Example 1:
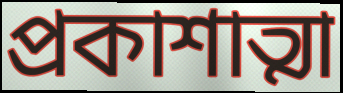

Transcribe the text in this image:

প্রকাশাত্মা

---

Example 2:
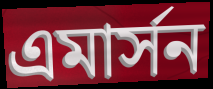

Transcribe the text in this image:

এমার্সন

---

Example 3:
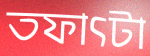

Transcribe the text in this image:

তফাৎটা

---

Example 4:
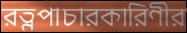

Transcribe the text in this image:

রত্নপাচারকারিণীর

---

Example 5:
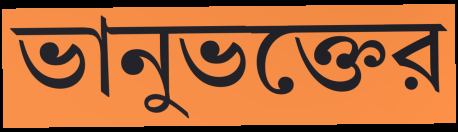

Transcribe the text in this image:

ভানুভক্তের